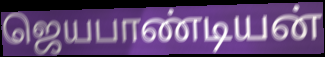
ஜெயபாண்டியன்